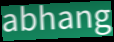
abhang